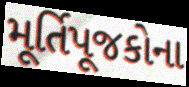
મૂર્તિપૂજકોના